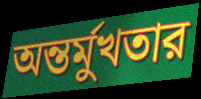
অন্তর্মুখতার